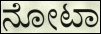
ನೋಟಾ